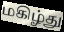
மகிழ்து